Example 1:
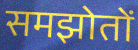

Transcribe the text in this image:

समझोतों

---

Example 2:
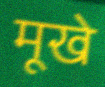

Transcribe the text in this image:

मूखे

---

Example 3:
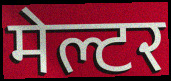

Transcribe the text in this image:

मेल्टर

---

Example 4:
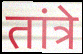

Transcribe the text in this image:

तांत्रे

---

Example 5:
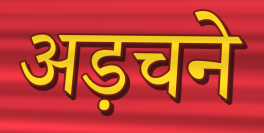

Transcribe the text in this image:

अड़चने